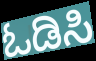
ಓಡಿಸಿ